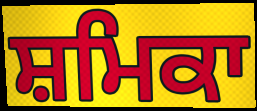
ਸ਼ਮਿਕਾ